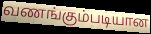
வணங்கும்படியான